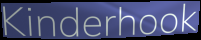
Kinderhook